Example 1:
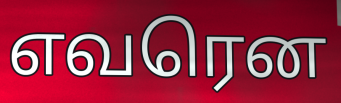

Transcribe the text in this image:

எவரென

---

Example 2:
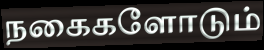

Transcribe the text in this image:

நகைகளோடும்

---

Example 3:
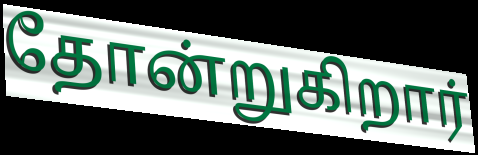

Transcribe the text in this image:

தோன்றுகிறார்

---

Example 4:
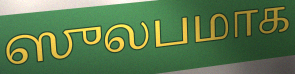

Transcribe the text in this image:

ஸுலபமாக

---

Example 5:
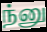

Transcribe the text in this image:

ந்னு